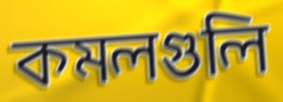
কমলগুলি